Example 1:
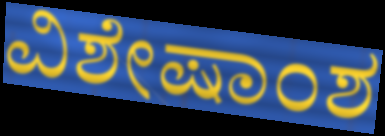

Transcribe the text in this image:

ವಿಶೇಷಾಂಶ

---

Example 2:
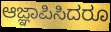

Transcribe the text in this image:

ಆಜ್ಞಾಪಿಸಿದರೂ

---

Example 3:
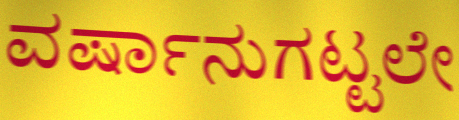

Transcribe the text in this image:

ವರ್ಷಾನುಗಟ್ಟಲೇ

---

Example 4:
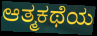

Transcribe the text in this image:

ಆತ್ಮಕಥೆಯ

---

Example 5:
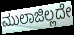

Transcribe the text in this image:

ಮುಲಾಜಿಲ್ಲದೇ